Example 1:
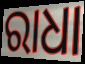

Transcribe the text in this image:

ରାଧା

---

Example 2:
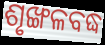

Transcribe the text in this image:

ଶୃଙ୍ଖଳବଦ୍ଧ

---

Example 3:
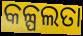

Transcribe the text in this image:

କଳ୍ପଲତା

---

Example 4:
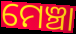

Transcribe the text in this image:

ମେଞ୍ଚା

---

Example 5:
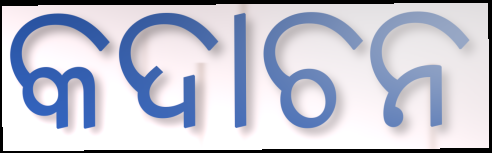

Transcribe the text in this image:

କଦାଚନ